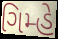
ગિમ્હે